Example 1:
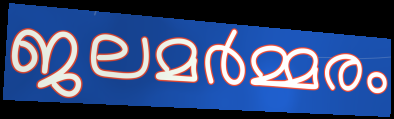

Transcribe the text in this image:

ജലമർമ്മരം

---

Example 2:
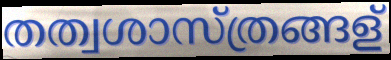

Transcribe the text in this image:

തത്വശാസ്ത്രങ്ങള്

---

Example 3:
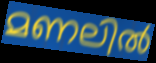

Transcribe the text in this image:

മണലിൽ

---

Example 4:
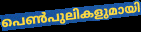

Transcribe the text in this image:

പെൺപുലികളുമായി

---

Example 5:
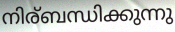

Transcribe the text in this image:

നിര്ബന്ധിക്കുന്നു